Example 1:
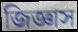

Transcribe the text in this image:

জিজ্ঞাস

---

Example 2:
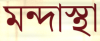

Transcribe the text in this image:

মন্দাস্থা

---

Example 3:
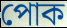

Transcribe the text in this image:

পোক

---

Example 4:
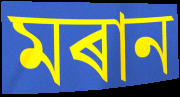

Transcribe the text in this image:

মৰান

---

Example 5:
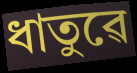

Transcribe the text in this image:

ধাতুৱে